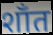
शाँत